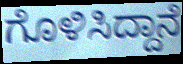
ಗೊಳಿಸಿದ್ದಾನೆ